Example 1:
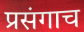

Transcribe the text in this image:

प्रसंगाच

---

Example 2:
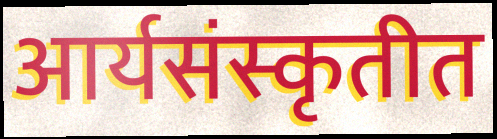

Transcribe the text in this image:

आर्यसंस्कृतीत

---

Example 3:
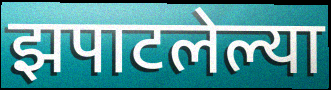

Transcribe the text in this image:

झपाटलेल्या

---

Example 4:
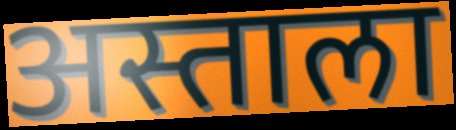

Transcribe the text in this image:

अस्ताला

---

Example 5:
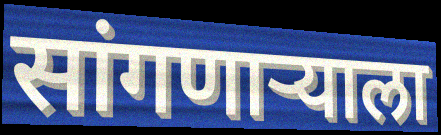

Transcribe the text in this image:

सांगणार्‍याला